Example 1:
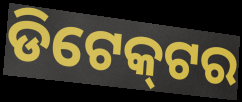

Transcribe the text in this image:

ଡିଟେକ୍‌ଟର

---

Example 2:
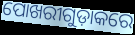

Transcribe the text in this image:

ପୋଖରୀଗୁଡ଼ାକରେ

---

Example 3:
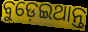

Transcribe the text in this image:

ବୁଡ଼େଇଥାନ୍ତ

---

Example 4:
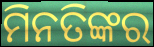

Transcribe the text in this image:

ମିନତିଙ୍କର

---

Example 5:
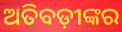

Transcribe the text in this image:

ଅତିବଡ଼ୀଙ୍କର